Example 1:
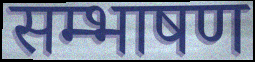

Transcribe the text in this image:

सम्भाषण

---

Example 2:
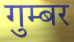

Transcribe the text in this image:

गुम्बर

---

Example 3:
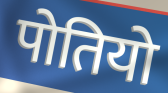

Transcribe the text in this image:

पोतियो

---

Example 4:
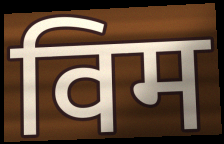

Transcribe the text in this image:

विम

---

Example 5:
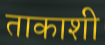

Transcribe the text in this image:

ताकाशी